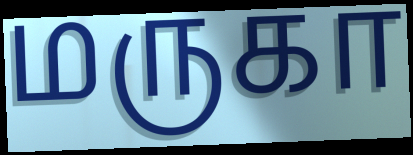
மருகா